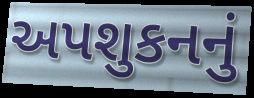
અપશુકનનું